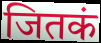
जितकं